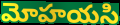
మోహయసి